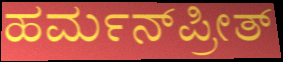
ಹರ್ಮನ್‌ಪ್ರೀತ್